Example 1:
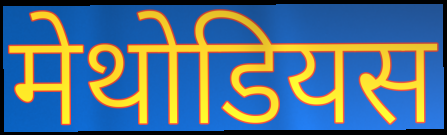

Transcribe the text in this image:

मेथोडियस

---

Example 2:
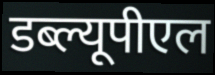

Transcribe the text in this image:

डब्ल्यूपीएल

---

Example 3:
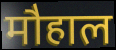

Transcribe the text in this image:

मौहाल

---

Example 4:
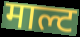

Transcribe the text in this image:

माल्ट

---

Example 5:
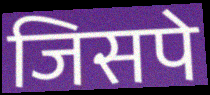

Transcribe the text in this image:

जिसपे